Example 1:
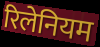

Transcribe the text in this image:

रिलेनियम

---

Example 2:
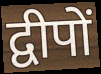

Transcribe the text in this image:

द्वीपों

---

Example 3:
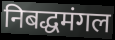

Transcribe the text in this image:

निबद्धमंगल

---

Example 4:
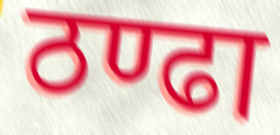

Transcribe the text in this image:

ठण्ढा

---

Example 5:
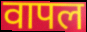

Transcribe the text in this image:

वापल